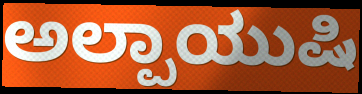
ಅಲ್ಪಾಯುಷಿ